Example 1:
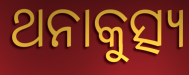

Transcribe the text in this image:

ଥନାକୁତ୍ସ୍ୟ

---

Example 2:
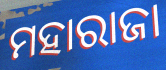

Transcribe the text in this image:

ମହାରାଜା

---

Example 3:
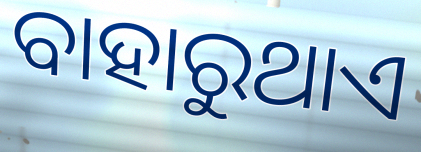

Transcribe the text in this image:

ବାହାରୁଥାଏ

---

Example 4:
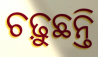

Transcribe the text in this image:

ଚଢ଼ୁଛନ୍ତି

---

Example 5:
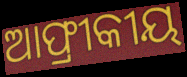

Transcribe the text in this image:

ଆଫ୍ରୀକୀୟ